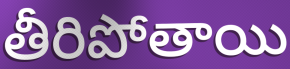
తీరిపోతాయి